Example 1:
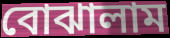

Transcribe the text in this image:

বোঝালাম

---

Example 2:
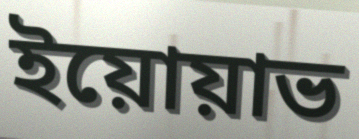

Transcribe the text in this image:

ইয়োয়াভ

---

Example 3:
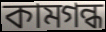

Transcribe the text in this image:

কামগন্ধ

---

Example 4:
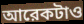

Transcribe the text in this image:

আরেকটাও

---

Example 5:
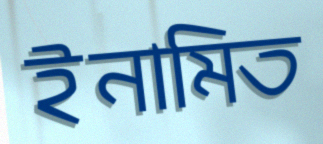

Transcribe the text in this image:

ইনামিত